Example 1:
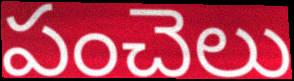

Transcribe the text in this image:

పంచెలు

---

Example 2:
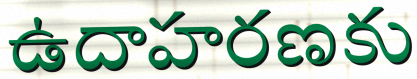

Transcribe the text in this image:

ఉదాహరణకు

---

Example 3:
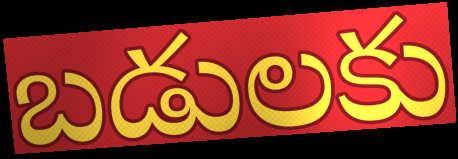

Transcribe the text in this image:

బడులకు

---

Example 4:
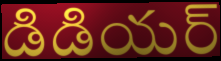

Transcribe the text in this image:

డిడియర్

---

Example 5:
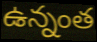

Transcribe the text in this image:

ఉన్నంత